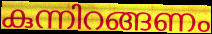
കുന്നിറങ്ങണം